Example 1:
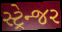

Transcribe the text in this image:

સ્ટ્રેન્જર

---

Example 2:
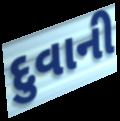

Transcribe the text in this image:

દુવાની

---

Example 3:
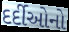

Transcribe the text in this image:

દર્દીઓનો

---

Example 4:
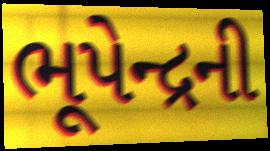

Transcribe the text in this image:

ભૂપેન્દ્રની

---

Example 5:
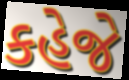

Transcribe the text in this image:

કહેજે